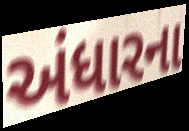
અંધારના